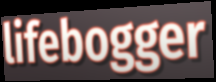
lifebogger